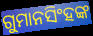
ଗୁମାନସିଂହଙ୍କ